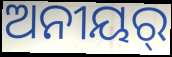
ଅନୀୟର୍